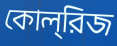
কোল্‌রিজ